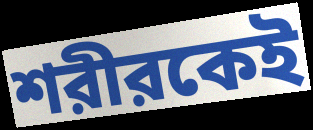
শরীরকেই